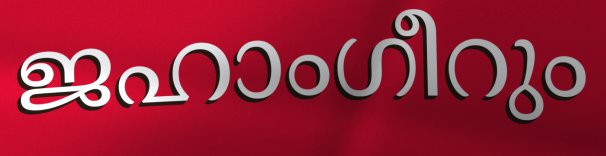
ജഹാംഗീറും